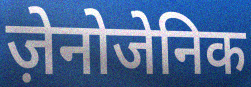
ज़ेनोजेनिक